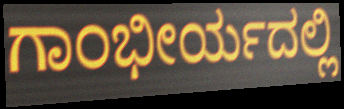
ಗಾಂಭೀರ್ಯದಲ್ಲಿ